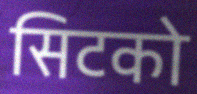
सिटको